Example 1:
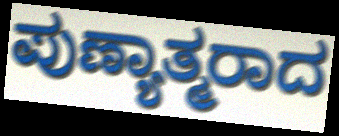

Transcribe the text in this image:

ಪುಣ್ಯಾತ್ಮರಾದ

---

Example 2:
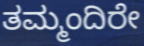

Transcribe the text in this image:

ತಮ್ಮಂದಿರೇ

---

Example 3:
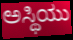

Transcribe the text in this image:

ಅಸ್ಥಿಯು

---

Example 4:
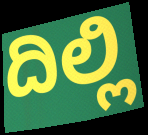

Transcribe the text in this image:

ದಿಲ್ಲಿ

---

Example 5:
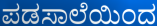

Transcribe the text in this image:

ಪಡಸಾಲೆಯಿಂದ